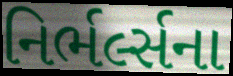
નિર્ભર્લ્સના